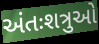
અંતઃશત્રુઓ